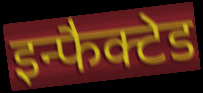
इन्फैक्टेड